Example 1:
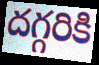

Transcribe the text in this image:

దగ్గరికి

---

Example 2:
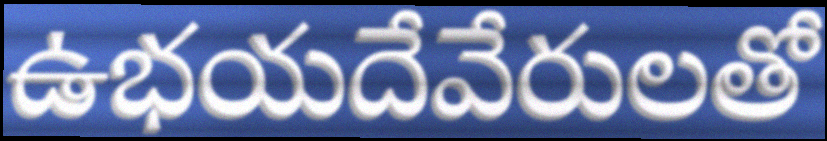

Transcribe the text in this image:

ఉభయదేవేరులతో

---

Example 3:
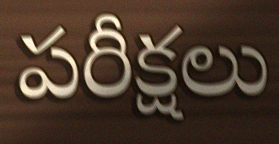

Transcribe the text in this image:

పరీక్షలు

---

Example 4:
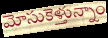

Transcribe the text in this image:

మోసుకెళ్తున్నాం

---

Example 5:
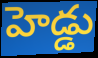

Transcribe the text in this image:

హెడ్డు